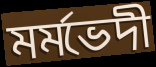
মৰ্মভেদী